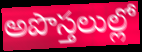
అపొస్తలుల్లో